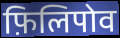
फ़िलिपोव